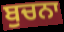
ਬੁਚਨਾ